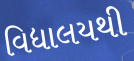
વિદ્યાલયથી